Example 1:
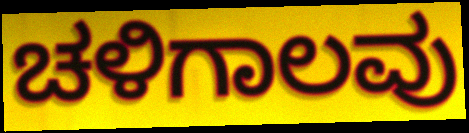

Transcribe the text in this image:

ಚಳಿಗಾಲವು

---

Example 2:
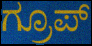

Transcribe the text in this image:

ಗ್ರೂಪ್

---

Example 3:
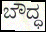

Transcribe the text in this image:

ಬೌದ್ಧ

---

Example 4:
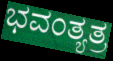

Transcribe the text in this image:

ಭವಂತ್ಯತ್ರ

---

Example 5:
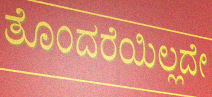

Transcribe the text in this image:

ತೊಂದರೆಯಿಲ್ಲದೇ